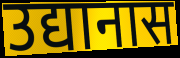
उद्यानास